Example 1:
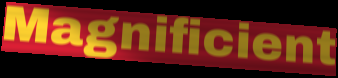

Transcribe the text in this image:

Magnificient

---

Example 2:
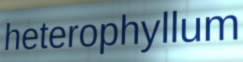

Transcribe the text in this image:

heterophyllum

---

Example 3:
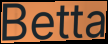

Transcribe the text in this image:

Betta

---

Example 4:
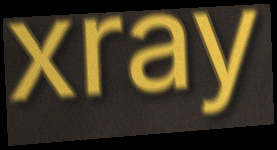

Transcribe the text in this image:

xray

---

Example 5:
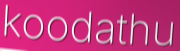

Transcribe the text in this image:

koodathu